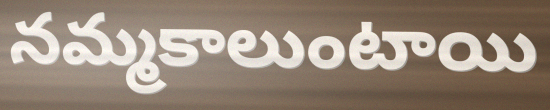
నమ్మకాలుంటాయి